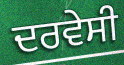
ਦਰਵੇਸੀ